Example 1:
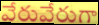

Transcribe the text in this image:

వేరువేరుగా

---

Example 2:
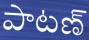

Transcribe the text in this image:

పాటణ్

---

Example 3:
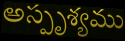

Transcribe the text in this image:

అస్పృశ్యము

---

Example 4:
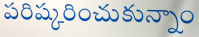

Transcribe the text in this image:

పరిష్కరించుకున్నాం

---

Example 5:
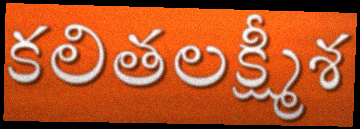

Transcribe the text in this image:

కలితలక్ష్మీశ